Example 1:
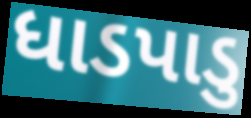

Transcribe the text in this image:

ધાડપાડુ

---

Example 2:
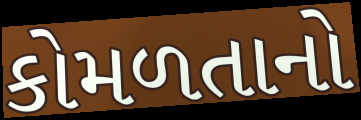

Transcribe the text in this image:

કોમળતાનો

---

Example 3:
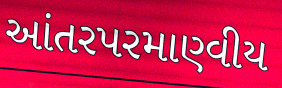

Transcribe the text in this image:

આંતરપરમાણ્વીય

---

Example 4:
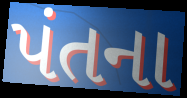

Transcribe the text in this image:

પંતના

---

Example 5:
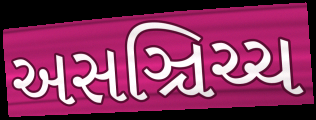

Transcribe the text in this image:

અસઞ્ચિચ્ચ